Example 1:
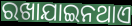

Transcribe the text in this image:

ରଖାଯାଇନଥାଏ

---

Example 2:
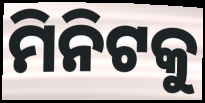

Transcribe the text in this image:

ମିନିଟକୁ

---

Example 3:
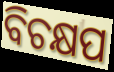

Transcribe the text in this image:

ବିଚକ୍ଷପ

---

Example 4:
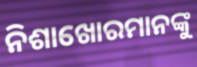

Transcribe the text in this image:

ନିଶାଖୋରମାନଙ୍କୁ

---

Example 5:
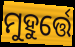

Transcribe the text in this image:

ମୁହୁର୍ତ୍ତେ